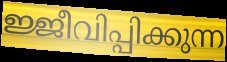
ജ്ജീവിപ്പിക്കുന്ന